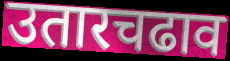
उतारचढाव